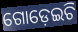
ଗୋଡ଼େଇଚି